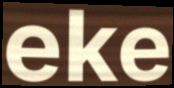
eke